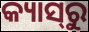
କ୍ୟାସ୍‌ରୁ